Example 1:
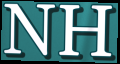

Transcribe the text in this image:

NH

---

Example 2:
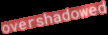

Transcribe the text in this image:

overshadowed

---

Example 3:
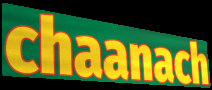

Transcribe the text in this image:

chaanach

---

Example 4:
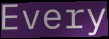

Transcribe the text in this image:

Every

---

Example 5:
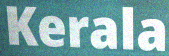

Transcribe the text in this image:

Kerala